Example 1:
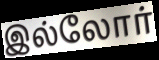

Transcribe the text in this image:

இல்லோர்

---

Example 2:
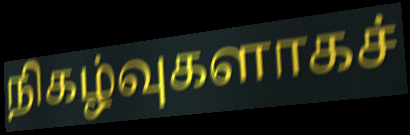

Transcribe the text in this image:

நிகழ்வுகளாகச்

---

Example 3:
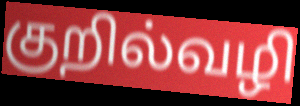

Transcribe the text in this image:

குறில்வழி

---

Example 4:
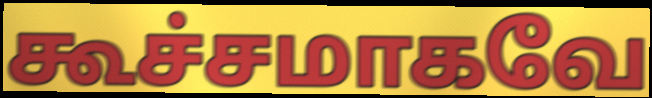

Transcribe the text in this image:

கூச்சமாகவே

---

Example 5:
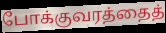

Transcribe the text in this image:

போக்குவரத்தைத்